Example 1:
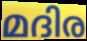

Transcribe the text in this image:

മദിര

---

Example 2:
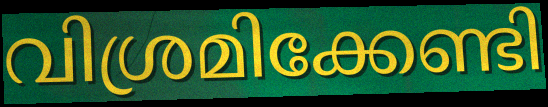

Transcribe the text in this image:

വിശ്രമിക്കേണ്ടി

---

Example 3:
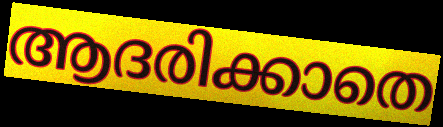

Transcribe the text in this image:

ആദരിക്കാതെ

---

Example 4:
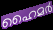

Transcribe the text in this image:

ഹൈമർ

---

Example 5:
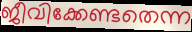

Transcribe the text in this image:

ജീവിക്കേണ്ടതെന്ന